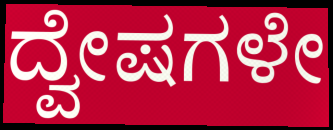
ದ್ವೇಷಗಳೇ